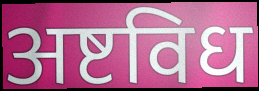
अष्टविध